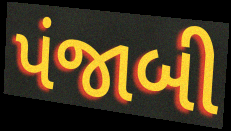
પંજાબી